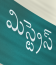
మిస్ట్రెస్